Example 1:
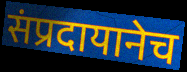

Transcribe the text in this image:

संप्रदायानेच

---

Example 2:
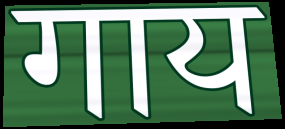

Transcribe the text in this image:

गाय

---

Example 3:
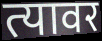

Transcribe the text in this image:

त्‍यावर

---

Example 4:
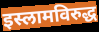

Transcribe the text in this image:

इस्लामविरुद्ध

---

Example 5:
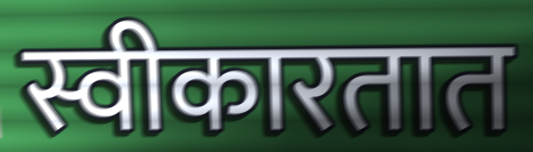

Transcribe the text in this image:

स्वीकारतात